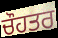
ਚੌਹਤਰ